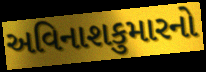
અવિનાશકુમારનો